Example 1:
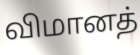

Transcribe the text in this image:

விமானத்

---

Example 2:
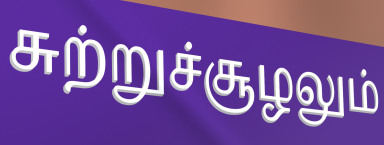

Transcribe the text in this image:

சுற்றுச்சூழலும்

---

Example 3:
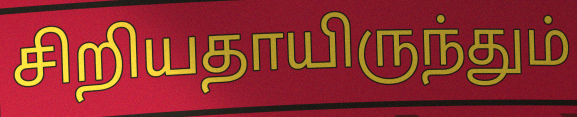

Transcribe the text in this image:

சிறியதாயிருந்தும்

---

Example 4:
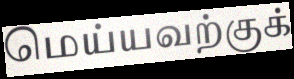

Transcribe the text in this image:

மெய்யவற்குக்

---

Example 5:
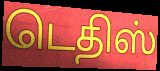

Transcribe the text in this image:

டெதிஸ்